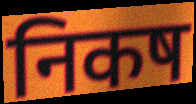
निकष